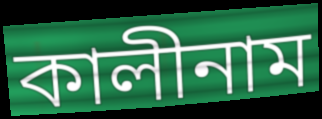
কালীনাম